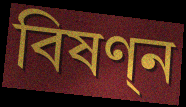
বিষণ্ন